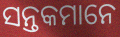
ସନ୍ତକମାନେ